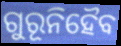
ଗୁରୂନିହୈବ